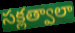
సక్లత్వాలా